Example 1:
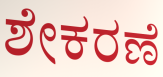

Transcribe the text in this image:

ಶೇಕರಣೆ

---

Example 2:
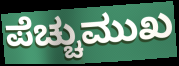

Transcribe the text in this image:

ಪೆಚ್ಚುಮುಖ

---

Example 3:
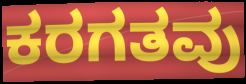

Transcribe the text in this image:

ಕರಗತವು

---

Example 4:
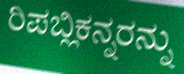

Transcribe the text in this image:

ರಿಪಬ್ಲಿಕನ್ನರನ್ನು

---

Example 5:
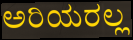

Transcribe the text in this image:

ಅರಿಯರಲ್ಲ